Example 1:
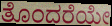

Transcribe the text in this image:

ತೊಂದರೆಯೇ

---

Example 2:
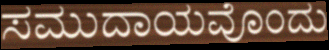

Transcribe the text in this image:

ಸಮುದಾಯವೊಂದು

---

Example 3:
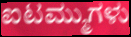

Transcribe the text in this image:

ಐಟಮ್ಮುಗಳು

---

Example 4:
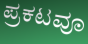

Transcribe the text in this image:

ಪ್ರಕಟವೂ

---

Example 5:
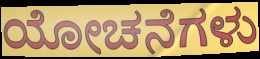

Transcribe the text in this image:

ಯೋಚನೆಗಳು